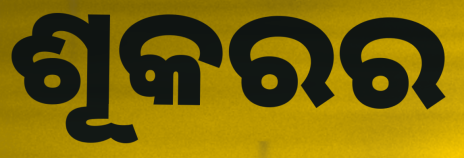
ଶୂକରର